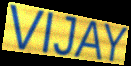
VIJAY